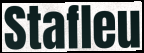
Stafleu